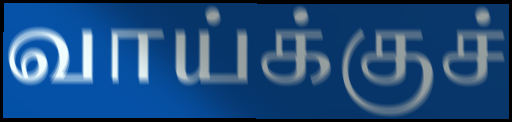
வாய்க்குச்